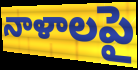
నాళాలపై